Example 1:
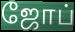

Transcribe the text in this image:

ஜோப்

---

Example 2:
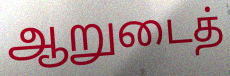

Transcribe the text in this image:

ஆறுடைத்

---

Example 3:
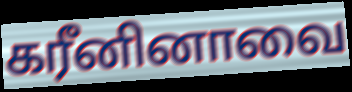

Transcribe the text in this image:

கரீனினாவை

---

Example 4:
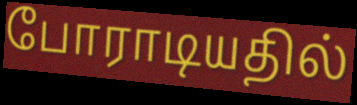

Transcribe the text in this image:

போராடியதில்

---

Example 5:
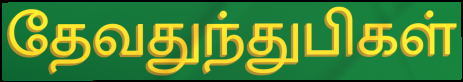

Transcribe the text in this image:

தேவதுந்துபிகள்